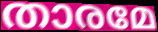
താരമേ